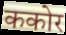
ककोर